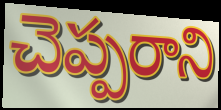
చెప్పరాని